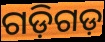
ଗଡ଼ିଗଡ଼